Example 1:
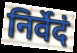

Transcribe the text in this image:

निर्वेदं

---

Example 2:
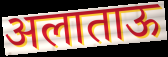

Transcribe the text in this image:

अलाताऊ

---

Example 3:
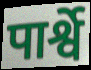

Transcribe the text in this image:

पार्श्वे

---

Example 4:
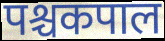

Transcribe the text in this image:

पश्चकपाल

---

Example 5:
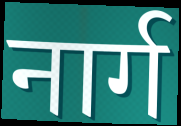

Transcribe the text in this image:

नार्ग